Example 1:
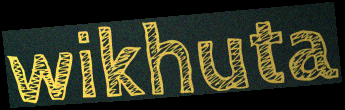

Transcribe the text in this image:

wikhuta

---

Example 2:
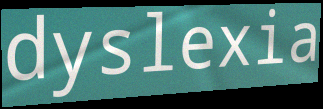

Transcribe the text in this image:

dyslexia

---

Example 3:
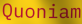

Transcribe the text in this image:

Quoniam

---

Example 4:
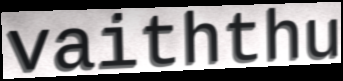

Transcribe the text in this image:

vaiththu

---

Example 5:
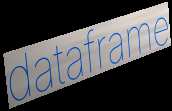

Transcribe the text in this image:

dataframe